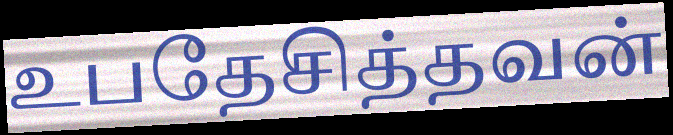
உபதேசித்தவன்